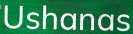
Ushanas